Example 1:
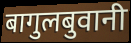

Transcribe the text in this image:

बागुलबुवानी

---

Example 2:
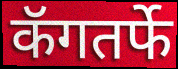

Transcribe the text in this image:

कॅगतर्फे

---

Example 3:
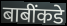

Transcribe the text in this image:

बाबींकडे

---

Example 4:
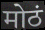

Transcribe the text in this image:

मोठं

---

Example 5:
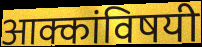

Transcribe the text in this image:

आक्कांविषयी